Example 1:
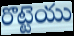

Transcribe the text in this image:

రొట్టెయు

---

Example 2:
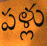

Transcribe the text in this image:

పళ్లు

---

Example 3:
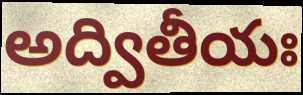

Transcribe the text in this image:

అద్వితీయః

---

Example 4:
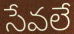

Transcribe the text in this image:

సేవలే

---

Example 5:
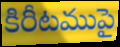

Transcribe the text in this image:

కిరీటముపై